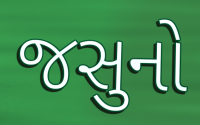
જસુનો